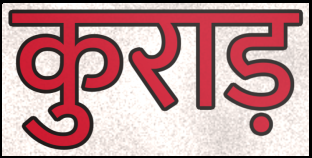
कुराड़